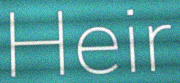
Heir